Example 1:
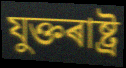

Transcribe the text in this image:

যুক্তৰাষ্ট্ৰ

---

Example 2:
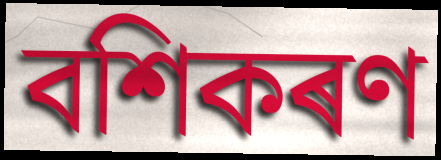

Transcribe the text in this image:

বশিকৰণ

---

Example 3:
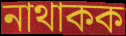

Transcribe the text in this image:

নাথাকক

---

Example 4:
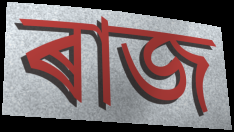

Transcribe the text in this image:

ৰাজ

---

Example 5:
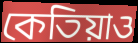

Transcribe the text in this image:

কেতিয়াও